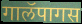
गालॅपागस